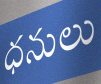
ధనులు